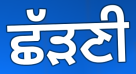
ਛੱੜਣੀ